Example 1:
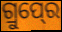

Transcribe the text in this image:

ଗ୍ରୁପ୍‍ରେ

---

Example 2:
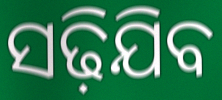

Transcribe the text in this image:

ସଢ଼ିଯିବ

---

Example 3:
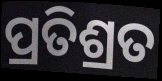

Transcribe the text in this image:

ପ୍ରତିଶ୍ରତ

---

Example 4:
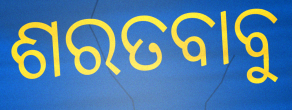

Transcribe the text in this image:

ଶରତବାବୁ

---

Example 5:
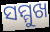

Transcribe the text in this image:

ସମ୍ମୁଖ